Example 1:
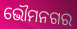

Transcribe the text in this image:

ଭୌମନଗର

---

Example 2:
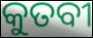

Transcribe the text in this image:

କୁତବୀ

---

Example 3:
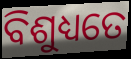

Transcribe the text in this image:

ବିଶୁଧ୍ୟତେ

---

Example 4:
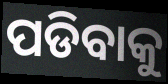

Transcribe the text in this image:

ପଡିବାକୁ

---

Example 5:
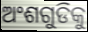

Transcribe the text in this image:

ଅଂଶଗୁଡିକୁ